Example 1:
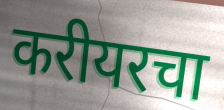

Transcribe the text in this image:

करीयरचा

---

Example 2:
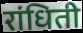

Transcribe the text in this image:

रांधिती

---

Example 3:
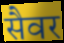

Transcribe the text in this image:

सैवर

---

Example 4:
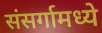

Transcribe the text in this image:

संसर्गामध्ये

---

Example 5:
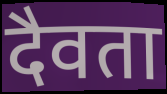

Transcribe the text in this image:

दैवता